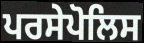
ਪਰਸੇਪੋਲਿਸ